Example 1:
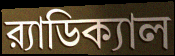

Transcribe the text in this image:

র‍্যাডিক্যাল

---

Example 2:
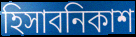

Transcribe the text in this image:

হিসাবনিকাশ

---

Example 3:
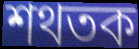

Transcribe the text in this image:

শথতক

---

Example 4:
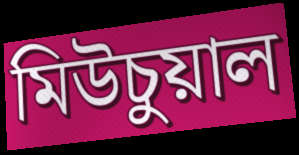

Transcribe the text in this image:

মিউচুয়াল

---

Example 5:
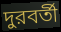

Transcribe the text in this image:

দুরবর্তী